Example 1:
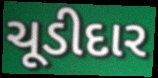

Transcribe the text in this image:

ચૂડીદાર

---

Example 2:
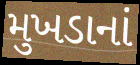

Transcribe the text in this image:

મુખડાનાં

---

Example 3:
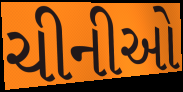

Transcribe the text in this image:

ચીનીઓ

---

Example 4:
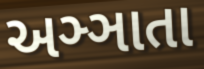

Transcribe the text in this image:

અઞ્ઞાતા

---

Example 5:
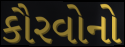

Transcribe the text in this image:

કૌરવોનો